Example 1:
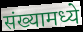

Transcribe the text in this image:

संख्यामध्ये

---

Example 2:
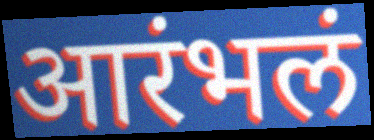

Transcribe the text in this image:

आरंभलं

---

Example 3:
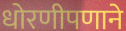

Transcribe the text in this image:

धोरणीपणाने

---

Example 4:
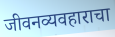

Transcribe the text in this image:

जीवनव्यवहाराचा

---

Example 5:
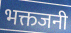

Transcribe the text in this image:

भक्तजनी